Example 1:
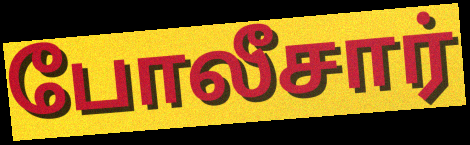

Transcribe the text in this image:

போலீசார்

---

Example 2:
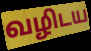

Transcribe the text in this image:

வழிடய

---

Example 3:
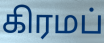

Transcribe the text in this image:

கிரமப்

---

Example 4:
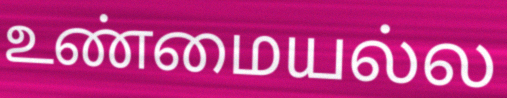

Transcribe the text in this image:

உண்மையல்ல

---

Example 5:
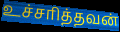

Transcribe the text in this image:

உச்சரித்தவன்